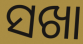
ସଖା